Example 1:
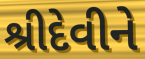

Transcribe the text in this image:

શ્રીદેવીને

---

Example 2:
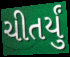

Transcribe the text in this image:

ચીતર્યું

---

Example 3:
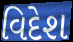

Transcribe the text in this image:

વિદેશ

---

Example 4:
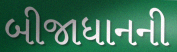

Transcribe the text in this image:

બીજાધાનની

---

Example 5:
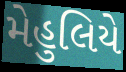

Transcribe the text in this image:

મેહુલિયે